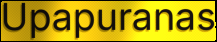
Upapuranas